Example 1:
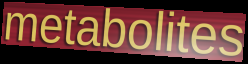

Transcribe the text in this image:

metabolites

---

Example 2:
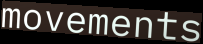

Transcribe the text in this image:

movements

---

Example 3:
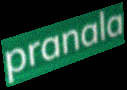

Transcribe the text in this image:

pranala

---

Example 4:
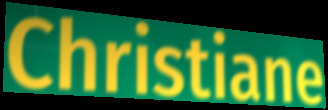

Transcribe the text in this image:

Christiane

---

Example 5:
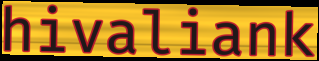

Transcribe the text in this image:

hivaliank